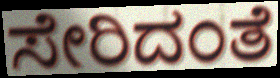
ಸೇರಿದಂತೆ